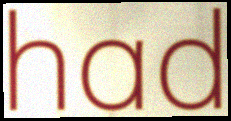
had